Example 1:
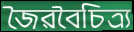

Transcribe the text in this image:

জৈৱবৈচিত্ৰ্য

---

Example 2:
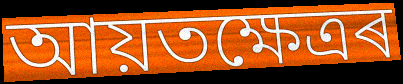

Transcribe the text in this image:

আয়তক্ষেত্ৰৰ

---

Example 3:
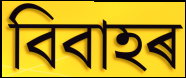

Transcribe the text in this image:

বিবাহৰ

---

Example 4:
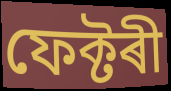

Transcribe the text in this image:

ফেক্টৰী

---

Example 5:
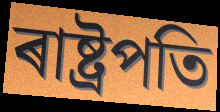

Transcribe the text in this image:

ৰাষ্ট্ৰপতি